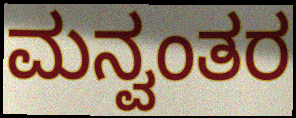
ಮನ್ವಂತರ